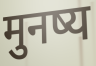
मुनष्य